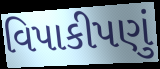
વિપાકીપણું